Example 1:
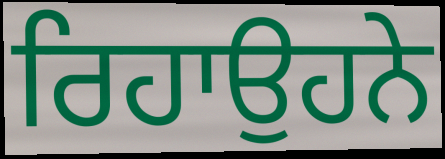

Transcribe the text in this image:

ਰਿਹਾਉਹਨੇ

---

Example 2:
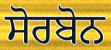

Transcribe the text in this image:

ਸੋਰਬੋਨ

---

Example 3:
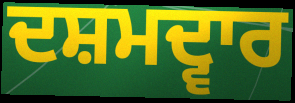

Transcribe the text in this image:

ਦਸ਼ਮਦ੍ਵਾਰ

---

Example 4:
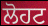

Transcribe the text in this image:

ਲੋਹਟ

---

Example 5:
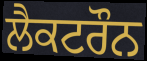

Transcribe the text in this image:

ਲੈਕਟਰੌਨ